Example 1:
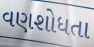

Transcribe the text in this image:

વણશોધતા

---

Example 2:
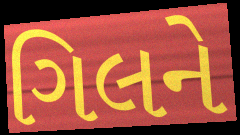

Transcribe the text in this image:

ગિલને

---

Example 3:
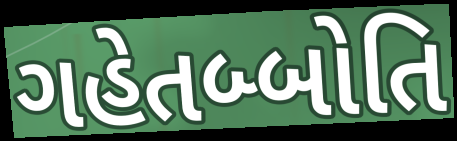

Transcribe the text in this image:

ગહેતબ્બોતિ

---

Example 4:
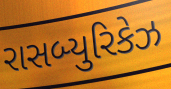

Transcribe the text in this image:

રાસબ્યુરિકેઝ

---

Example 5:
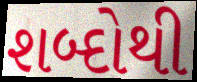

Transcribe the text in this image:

શબ્દોથી